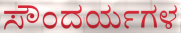
ಸೌಂದರ್ಯಗಳ